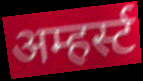
अम्हर्स्ट